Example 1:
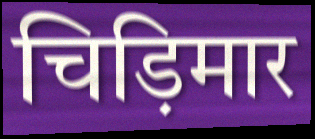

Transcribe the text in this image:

चिड़िमार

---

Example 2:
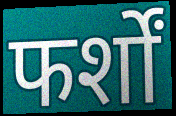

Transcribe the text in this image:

फर्शों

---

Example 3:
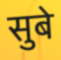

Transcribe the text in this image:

सुबे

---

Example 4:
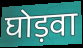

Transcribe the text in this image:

घोड़वा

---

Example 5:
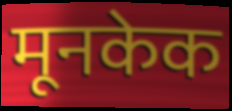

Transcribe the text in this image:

मूनकेक